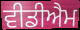
ਵੀਡੀਐਮ